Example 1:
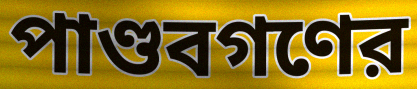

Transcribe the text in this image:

পাণ্ডবগণের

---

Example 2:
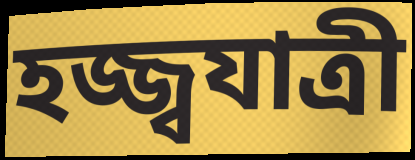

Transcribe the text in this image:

হজ্জ্বযাত্রী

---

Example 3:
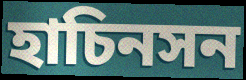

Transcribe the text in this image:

হাচিনসন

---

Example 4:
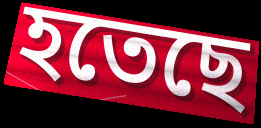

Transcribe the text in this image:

হতেছে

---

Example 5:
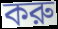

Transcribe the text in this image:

করু